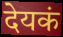
देयकं